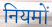
नियमों